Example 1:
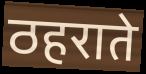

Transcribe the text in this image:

ठहराते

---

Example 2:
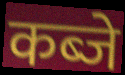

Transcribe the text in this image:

कब्‍जे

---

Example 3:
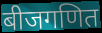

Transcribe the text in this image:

बीजगणित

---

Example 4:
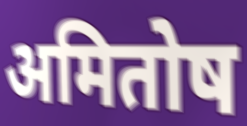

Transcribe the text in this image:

अमितोष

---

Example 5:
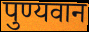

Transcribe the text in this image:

पुण्यवान